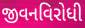
જીવનવિરોધી